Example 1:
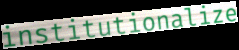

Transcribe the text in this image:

institutionalize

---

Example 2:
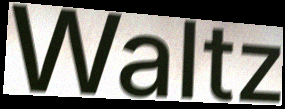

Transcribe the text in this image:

Waltz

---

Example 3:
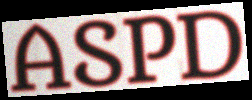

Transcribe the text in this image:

ASPD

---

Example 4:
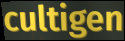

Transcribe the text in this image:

cultigen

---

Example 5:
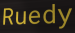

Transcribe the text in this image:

Ruedy